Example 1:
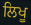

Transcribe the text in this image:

ਲਿਖੂ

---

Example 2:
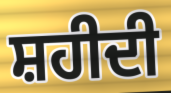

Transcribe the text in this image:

ਸ਼ਹੀਦੀ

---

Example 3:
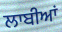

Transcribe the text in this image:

ਲਾਬੀਆਂ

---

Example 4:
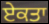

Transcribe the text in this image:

ਏਕਤਾ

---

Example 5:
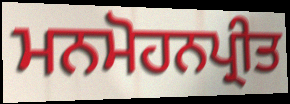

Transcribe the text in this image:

ਮਨਮੋਹਨਪ੍ਰੀਤ